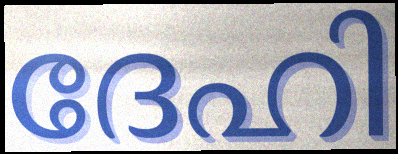
ദേഹി